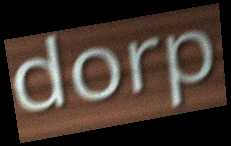
dorp